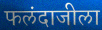
फलंदाजीला